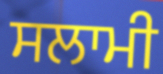
ਸਲਾਮੀ